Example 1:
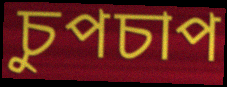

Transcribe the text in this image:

চুপচাপ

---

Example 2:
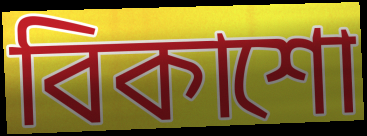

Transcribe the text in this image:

বিকাশো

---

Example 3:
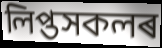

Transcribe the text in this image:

লিপ্তসকলৰ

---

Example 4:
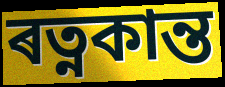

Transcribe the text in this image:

ৰত্নকান্ত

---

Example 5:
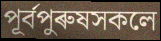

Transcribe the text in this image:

পূৰ্বপুৰুষসকলে